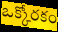
ఒక్కోరకం